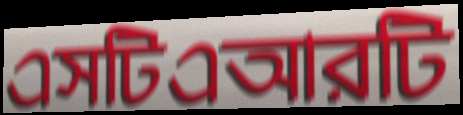
এসটিএআরটি